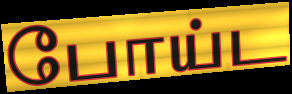
போய்ட